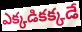
ఎక్కడికక్కడే